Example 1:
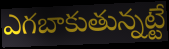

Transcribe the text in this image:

ఎగబాకుతున్నట్టే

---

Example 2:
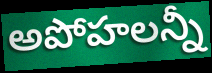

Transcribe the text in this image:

అపోహలన్నీ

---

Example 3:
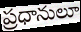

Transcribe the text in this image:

ప్రధానులూ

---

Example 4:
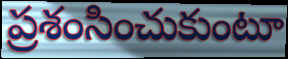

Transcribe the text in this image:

ప్రశంసించుకుంటూ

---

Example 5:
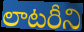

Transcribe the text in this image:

లాటరీని